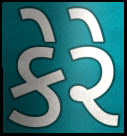
કેરે